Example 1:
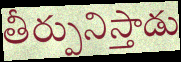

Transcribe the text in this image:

తీర్పునిస్తాడు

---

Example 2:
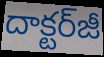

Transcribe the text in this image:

దాక్టర్‌జీ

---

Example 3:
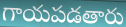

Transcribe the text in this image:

గాయపడతారు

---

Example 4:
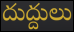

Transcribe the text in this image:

దుద్దులు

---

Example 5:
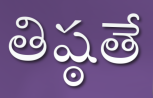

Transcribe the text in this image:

తిష్ఠతే